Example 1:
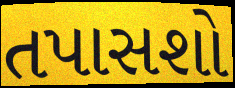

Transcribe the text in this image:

તપાસશો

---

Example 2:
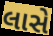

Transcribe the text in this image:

લાસે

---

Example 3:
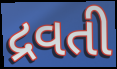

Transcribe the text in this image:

દ્રવતી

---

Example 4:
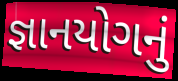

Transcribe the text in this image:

જ્ઞાનયોગનું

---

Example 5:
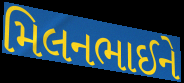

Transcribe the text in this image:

મિલનભાઈને